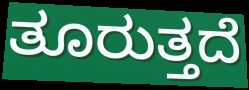
ತೂರುತ್ತದೆ